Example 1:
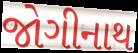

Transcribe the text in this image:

જોગીનાથ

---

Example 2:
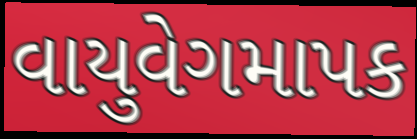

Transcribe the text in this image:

વાયુવેગમાપક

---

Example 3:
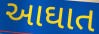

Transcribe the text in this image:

આઘાત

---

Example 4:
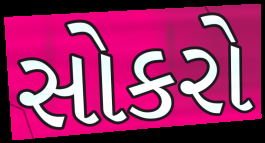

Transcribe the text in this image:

સોકરો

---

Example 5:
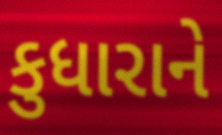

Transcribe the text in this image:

કુધારાને